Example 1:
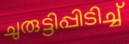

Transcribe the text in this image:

ചുരുട്ടിപ്പിടിച്ച്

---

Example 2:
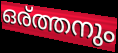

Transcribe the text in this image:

ഒര്ത്തനും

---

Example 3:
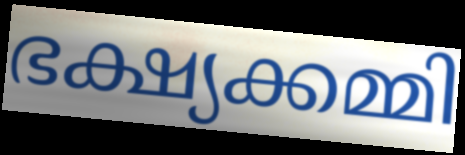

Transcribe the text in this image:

ഭക്ഷ്യക്കമ്മി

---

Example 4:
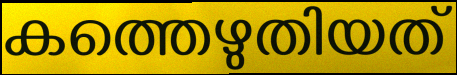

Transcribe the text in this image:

കത്തെഴുതിയത്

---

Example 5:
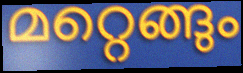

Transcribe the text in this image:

മറ്റെങ്ങും